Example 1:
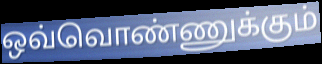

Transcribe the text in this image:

ஒவ்வொண்ணுக்கும்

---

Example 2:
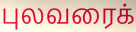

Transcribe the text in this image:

புலவரைக்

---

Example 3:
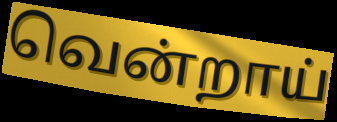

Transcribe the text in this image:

வென்றாய்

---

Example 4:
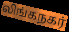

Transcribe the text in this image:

லிங்கநகர்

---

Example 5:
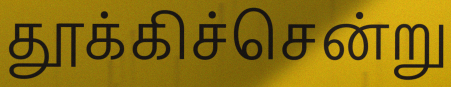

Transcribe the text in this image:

தூக்கிச்சென்று